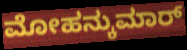
ಮೋಹನ್ಕುಮಾರ್